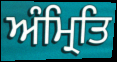
ਅੰਮ੍ਰਿਤਿ